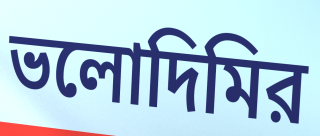
ভলোদিমির